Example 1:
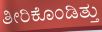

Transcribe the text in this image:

ತೀರಿಕೊಂಡಿತ್ತು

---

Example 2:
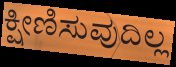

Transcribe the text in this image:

ಕ್ಷೀಣಿಸುವುದಿಲ್ಲ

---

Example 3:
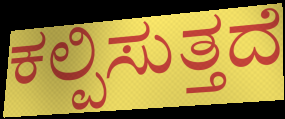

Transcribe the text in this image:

ಕಲ್ಪಿಸುತ್ತದೆ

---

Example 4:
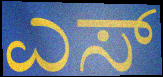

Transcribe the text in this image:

ಎಸ್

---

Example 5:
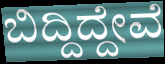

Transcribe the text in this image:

ಬಿದ್ದಿದ್ದೇವೆ